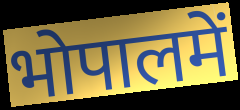
भोपालमें